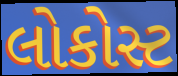
લોકોસ્ટ